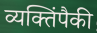
व्यक्तिंपैकी